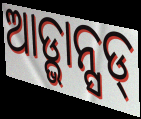
ଆଡ୍ଭାନ୍ସଡ୍